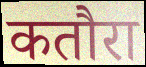
कतौरा